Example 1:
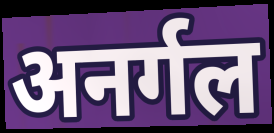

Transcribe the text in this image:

अनर्गल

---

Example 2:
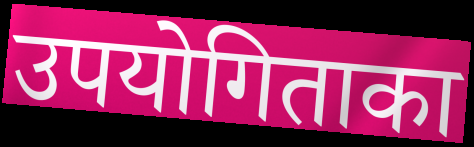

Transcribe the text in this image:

उपयोगिताका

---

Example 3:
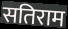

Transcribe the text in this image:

सतिराम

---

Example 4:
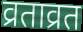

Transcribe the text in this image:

व्रताव्रत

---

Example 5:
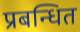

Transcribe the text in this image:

प्रबन्धित